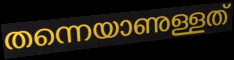
തന്നെയാണുള്ളത്